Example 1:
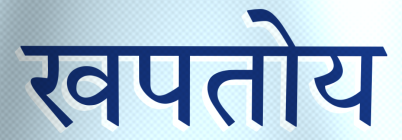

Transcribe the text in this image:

खपतोय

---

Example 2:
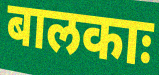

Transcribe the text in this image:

बालकाः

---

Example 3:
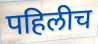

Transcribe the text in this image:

पहिलीच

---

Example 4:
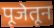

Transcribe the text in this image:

पूजेतून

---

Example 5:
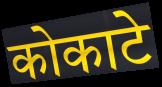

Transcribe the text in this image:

कोकाटे